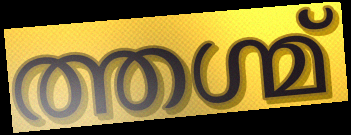
ത്തഗ്മ്